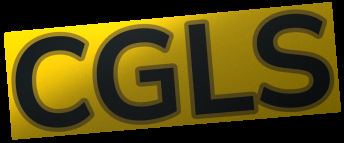
CGLS